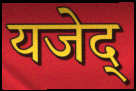
यजेद्